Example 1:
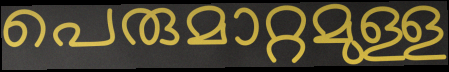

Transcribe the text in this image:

പെരുമാറ്റമുള്ള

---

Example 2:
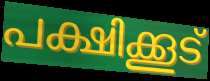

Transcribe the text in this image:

പക്ഷിക്കൂട്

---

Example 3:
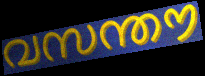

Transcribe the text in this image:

വസന്തൗ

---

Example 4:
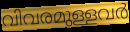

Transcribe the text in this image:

വിവരമുള്ളവർ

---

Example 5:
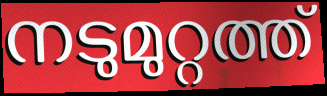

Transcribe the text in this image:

നടുമുറ്റത്ത്